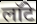
लॉटे